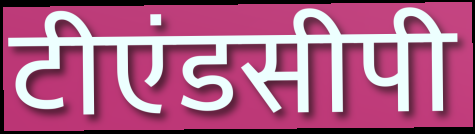
टीएंडसीपी